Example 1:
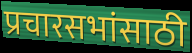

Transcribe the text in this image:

प्रचारसभांसाठी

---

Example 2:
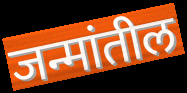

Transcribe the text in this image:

जन्मांतील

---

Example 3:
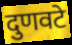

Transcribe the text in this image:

दुणवटे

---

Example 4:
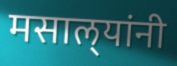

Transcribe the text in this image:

मसाल्यांनी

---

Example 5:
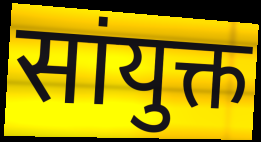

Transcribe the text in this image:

सांयुक्त